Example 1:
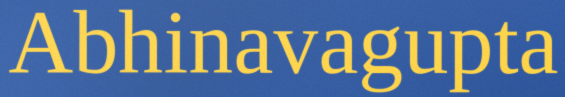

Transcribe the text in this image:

Abhinavagupta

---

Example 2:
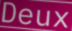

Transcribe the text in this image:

Deux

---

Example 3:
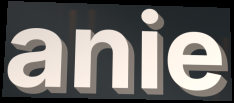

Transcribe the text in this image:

anie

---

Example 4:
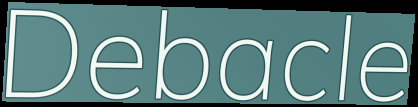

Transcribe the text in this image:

Debacle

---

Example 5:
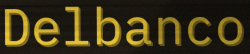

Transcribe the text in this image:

Delbanco